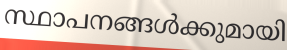
സ്ഥാപനങ്ങൾക്കുമായി